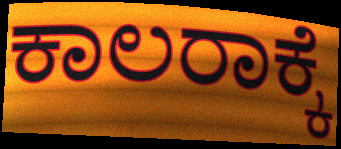
ಕಾಲರಾಕ್ಕೆ